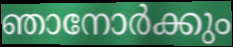
ഞാനോർക്കും